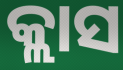
କ୍ଲାସ